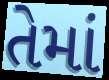
તેમાં